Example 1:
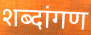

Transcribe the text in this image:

शब्दांगण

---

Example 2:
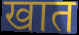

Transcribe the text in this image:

खात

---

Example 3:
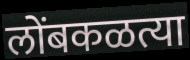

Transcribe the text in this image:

लोंबकळत्या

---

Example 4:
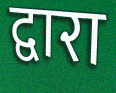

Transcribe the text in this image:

द्वारा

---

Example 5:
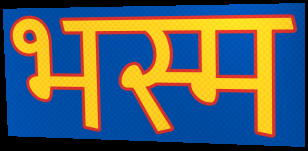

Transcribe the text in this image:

भस्म